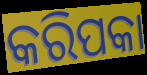
କରିପକା